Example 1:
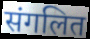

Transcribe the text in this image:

संगलित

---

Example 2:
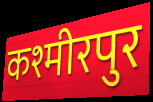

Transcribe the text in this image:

कश्मीरपुर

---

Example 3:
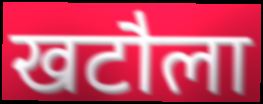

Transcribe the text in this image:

खटौला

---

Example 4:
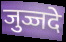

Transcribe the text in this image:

जुज्जदे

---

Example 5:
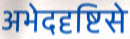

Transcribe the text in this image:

अभेददृष्टिसे